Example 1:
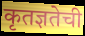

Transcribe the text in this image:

कृतज्ञतेची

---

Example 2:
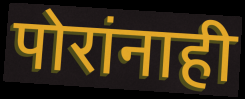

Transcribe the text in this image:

पोरांनाही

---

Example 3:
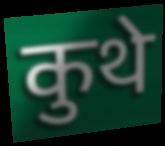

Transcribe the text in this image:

कुथे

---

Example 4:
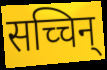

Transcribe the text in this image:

सच्चिन्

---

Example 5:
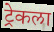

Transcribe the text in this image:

ट्रेकला